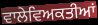
ਵਾਲੇਵਿਅਕਤੀਆਂ